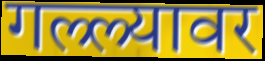
गल्ल्यावर